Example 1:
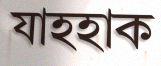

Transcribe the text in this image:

যাহহাক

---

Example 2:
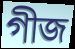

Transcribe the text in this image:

গীজ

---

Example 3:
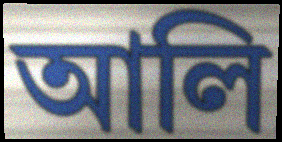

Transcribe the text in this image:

আলি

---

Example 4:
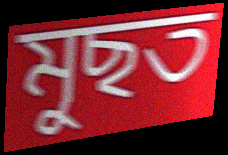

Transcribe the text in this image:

মুছত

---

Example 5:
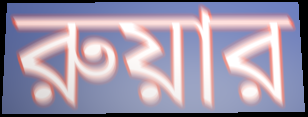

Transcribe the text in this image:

রুয়ার